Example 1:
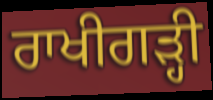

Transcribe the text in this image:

ਰਾਖੀਗੜ੍ਹੀ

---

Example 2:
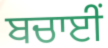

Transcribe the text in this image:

ਬਚਾਈਂ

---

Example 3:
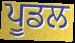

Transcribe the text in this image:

ਪੂਡਲ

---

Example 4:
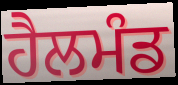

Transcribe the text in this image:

ਹੈਲਮੰਡ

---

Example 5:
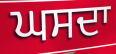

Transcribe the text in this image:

ਘਸਦਾ